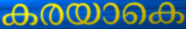
കരയാകെ